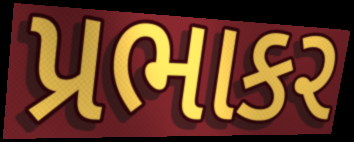
પ્રભાકર